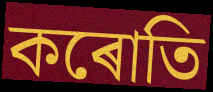
কৰোতি